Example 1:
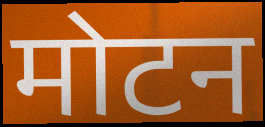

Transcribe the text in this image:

मोटन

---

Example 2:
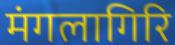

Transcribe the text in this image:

मंगलागिरि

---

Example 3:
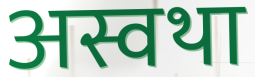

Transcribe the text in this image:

अस्वथा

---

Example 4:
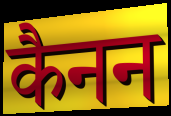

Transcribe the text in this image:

कैनन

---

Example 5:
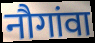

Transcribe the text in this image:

नौगांवा